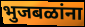
भुजबळांना